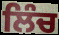
ਲਿੰਚ